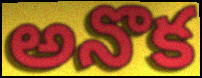
అనొక